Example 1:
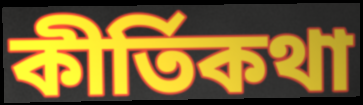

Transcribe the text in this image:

কীর্তিকথা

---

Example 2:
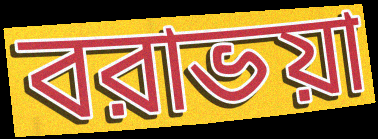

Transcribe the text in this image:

বরাভয়া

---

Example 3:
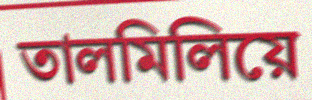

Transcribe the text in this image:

তালমিলিয়ে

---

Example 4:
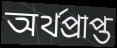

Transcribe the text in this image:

অর্থপ্রাপ্ত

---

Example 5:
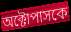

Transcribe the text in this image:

অক্টোপাসকে